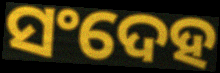
ସଂଦେହ